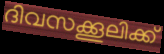
ദിവസക്കൂലിക്ക്